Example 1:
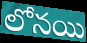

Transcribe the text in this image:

లోనయి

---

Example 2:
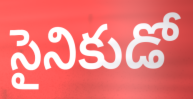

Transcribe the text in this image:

సైనికుడో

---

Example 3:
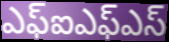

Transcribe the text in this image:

ఎఫ్ఐఎఫ్ఎస్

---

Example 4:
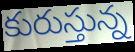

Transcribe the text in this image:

కురుస్తున్న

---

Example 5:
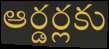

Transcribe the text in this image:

ఆర్డర్లకు